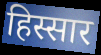
हिस्सार